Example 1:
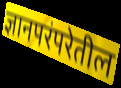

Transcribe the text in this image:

ज्ञानपरंपरेतील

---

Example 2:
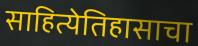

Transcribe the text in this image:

साहित्येतिहासाचा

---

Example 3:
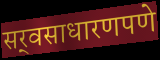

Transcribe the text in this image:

सर्वसाधारणपणे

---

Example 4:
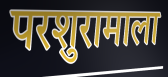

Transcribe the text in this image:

परशुरामाला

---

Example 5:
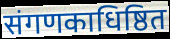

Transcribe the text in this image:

संगणकाधिष्ठित